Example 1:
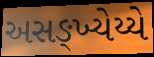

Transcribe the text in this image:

અસઙ્ખ્યેય્યે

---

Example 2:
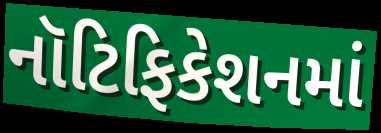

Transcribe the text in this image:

નૉટિફિકેશનમાં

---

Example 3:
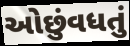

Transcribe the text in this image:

ઓછુંવધતું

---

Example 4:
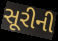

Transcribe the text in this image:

સૂરીની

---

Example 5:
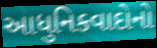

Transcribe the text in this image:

આધુનિકવાદોનો